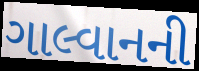
ગાલ્વાનની